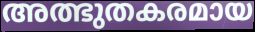
അത്ഭുതകരമായ